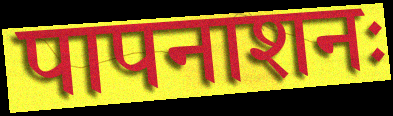
पापनाशनः